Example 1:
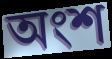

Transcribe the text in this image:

অংশ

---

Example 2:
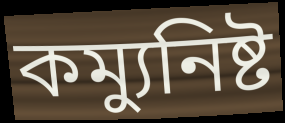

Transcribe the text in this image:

কম্যুনিষ্ট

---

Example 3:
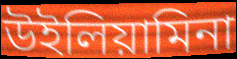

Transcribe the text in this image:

উইলিয়ামিনা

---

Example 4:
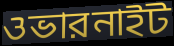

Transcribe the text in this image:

ওভারনাইট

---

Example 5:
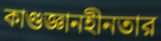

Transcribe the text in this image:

কাণ্ডজ্ঞানহীনতার